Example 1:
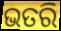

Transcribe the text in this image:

ଭତରି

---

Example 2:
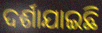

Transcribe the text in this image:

ଦର୍ଶାଯାଇଛି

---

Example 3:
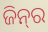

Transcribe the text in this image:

ଜିନ୍‍ର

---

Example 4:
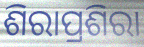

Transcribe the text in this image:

ଶିରାପ୍ରଶିରା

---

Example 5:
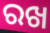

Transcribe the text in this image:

ରଖ